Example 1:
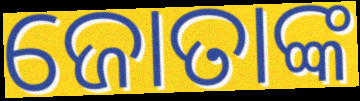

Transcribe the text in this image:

ଜୋତାଙ୍କ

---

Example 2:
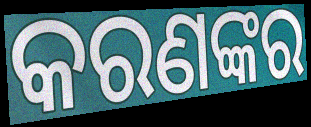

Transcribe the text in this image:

କରଣଙ୍କର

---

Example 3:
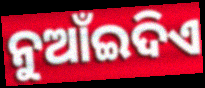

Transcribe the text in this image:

ନୁଆଁଇଦିଏ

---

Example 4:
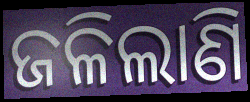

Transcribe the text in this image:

ଜଳିଲାଣି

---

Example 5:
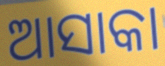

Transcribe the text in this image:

ଆସାକା